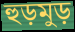
হুড়মুড়